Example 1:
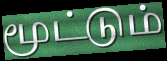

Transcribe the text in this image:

மூட்டும்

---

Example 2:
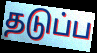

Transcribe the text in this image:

தடுப்ப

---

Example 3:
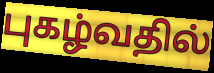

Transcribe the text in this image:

புகழ்வதில்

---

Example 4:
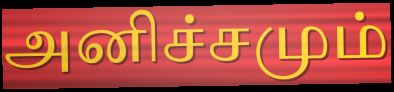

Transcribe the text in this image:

அனிச்சமும்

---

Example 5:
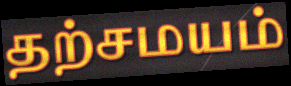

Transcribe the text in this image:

தற்சமயம்